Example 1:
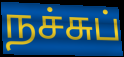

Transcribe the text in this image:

நச்சுப்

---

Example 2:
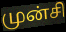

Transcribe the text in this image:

முன்சி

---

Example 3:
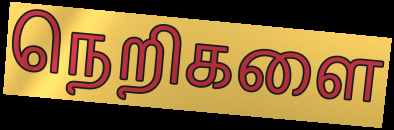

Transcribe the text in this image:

நெறிகளை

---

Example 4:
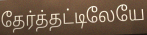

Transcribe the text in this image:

தேர்த்தட்டிலேயே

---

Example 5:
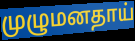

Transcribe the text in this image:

முழுமனதாய்